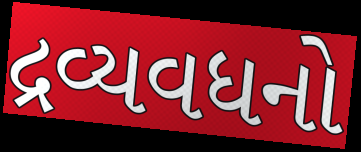
દ્રવ્યવધનો